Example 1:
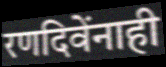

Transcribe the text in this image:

रणदिवेंनाही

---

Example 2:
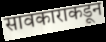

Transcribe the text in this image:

सावकाराकडून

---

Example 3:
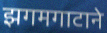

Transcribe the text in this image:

झगमगाटाने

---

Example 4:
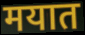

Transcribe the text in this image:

मयात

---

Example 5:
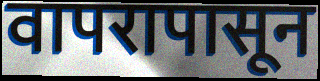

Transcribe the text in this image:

वापरापासून